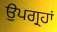
ਉਪਗ੍ਰਹਾਂ